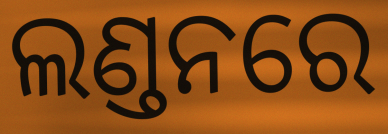
ଲଣ୍ଡନରେ